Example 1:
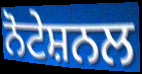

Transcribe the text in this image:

ਨੋਟੇਸ਼ਨਲ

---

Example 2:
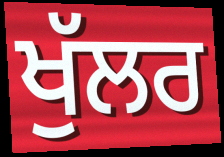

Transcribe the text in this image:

ਖੁੱਲਰ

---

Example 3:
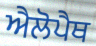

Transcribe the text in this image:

ਐਲੋਪੈਥ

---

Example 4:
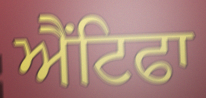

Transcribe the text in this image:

ਐਂਟਿਫਾ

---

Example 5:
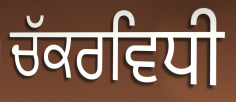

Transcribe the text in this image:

ਚੱਕਰਵਿਧੀ